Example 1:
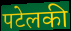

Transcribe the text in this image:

पटेलकी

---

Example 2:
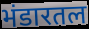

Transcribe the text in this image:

भंडारतल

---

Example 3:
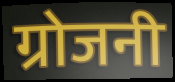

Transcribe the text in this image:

ग्रोजनी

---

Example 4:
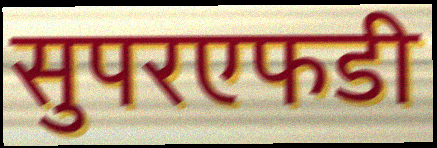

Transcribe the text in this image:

सुपरएफडी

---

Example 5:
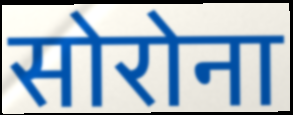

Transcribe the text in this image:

सोरोना